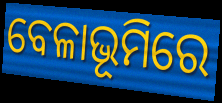
ବେଳାଭୂମିରେ